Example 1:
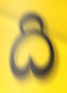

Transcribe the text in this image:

ది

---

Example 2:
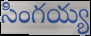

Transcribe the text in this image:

సింగయ్య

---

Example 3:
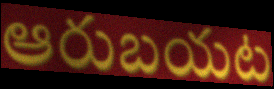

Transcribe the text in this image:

ఆరుబయట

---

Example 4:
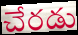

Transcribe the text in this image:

చేరడు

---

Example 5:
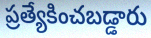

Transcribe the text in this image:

ప్రత్యేకించబడ్డారు